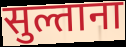
सुल्ताना